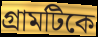
গ্রামটিকে